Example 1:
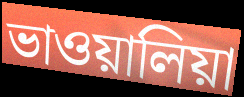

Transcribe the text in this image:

ভাওয়ালিয়া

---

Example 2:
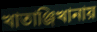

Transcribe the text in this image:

খাতাঞ্জিখানায়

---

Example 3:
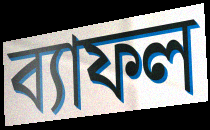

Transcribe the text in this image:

ব্যাফল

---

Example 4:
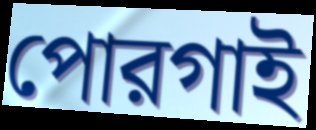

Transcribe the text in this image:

পোরগাই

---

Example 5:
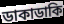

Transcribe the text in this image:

ডাকাডাকি